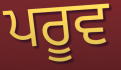
ਪਰੂਵ